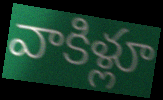
వాకిళ్లూ